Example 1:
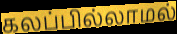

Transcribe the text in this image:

கலப்பில்லாமல்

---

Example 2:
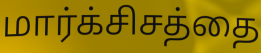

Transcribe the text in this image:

மார்க்சிசத்தை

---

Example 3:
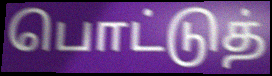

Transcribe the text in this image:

பொட்டுத்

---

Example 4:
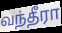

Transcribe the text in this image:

வந்தீரா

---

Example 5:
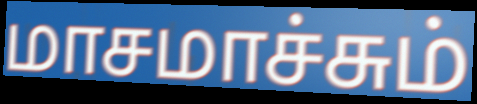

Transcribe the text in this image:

மாசமாச்சும்